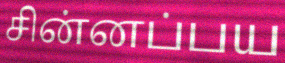
சின்னப்பய